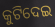
କୁଟିଦେଇ